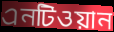
এনটিওয়ান